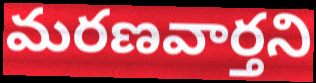
మరణవార్తని